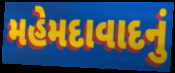
મહેમદાવાદનું